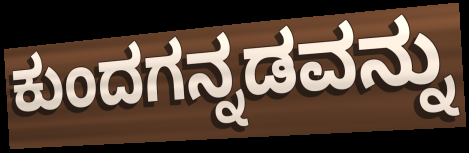
ಕುಂದಗನ್ನಡವನ್ನು